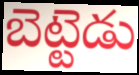
బెట్టెడు